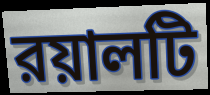
রয়ালটি